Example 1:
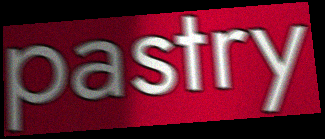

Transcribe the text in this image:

pastry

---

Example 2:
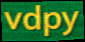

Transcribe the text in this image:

vdpy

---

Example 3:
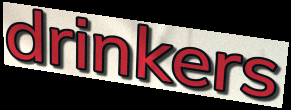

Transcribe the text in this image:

drinkers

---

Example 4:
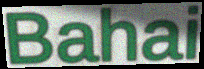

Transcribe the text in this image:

Bahai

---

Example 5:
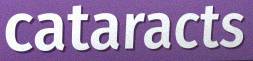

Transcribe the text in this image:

cataracts